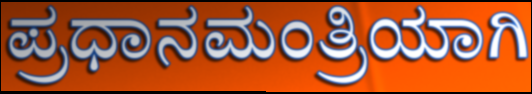
ಪ್ರಧಾನಮಂತ್ರಿಯಾಗಿ